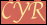
CYR